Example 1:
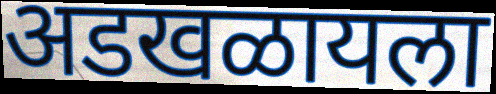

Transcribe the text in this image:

अडखळायला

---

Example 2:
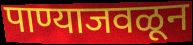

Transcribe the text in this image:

पाण्याजवळून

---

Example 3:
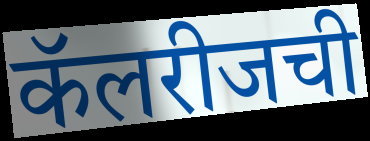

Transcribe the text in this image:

कॅलरीजची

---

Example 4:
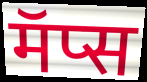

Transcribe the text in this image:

मॅप्स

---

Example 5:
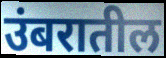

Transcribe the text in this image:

उंबरातील